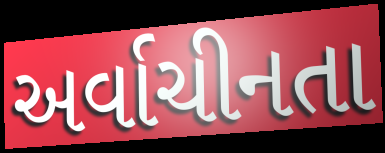
અર્વાચીનતા